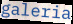
galeria